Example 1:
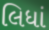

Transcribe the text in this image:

લિધાં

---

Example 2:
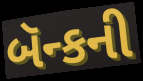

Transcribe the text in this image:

બૅન્કની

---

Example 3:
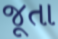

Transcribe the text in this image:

જૂતા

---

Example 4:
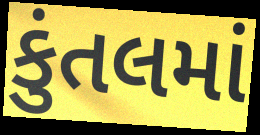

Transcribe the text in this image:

કુંતલમાં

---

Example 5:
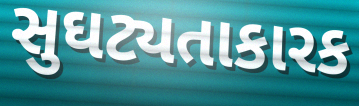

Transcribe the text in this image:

સુઘટ્યતાકારક